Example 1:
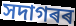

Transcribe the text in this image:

সদাগৰৰ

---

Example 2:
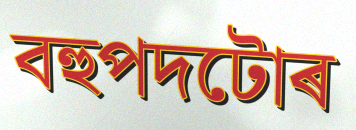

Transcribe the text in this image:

বহুপদটোৰ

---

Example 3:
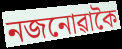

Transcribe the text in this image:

নজনোৱাকৈ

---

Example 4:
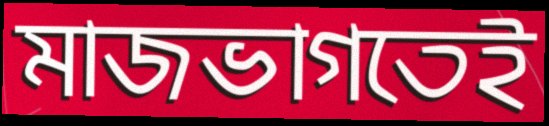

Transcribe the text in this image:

মাজভাগতেই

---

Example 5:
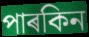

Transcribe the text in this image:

পাৰকিন